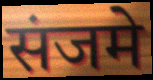
संजमे